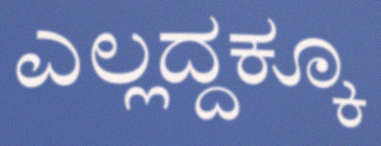
ಎಲ್ಲದ್ದಕ್ಕೂ